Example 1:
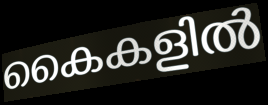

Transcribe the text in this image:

കൈകളിൽ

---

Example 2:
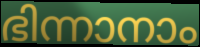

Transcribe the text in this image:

ഭിന്നാനാം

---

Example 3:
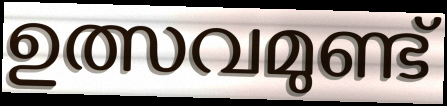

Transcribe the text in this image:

ഉത്സവമുണ്ട്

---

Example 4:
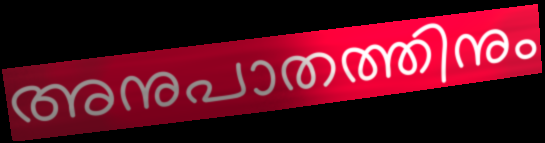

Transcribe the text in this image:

അനുപാതത്തിനും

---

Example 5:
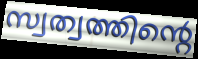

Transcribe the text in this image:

സ്വത്വത്തിന്റെ